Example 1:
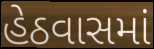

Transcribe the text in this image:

હેઠવાસમાં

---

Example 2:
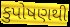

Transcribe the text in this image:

કુપોષણથી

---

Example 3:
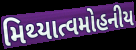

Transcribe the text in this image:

મિથ્યાત્વમોહનીય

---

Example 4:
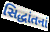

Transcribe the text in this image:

સિદ્ધાંતનાં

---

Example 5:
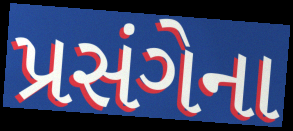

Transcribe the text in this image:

પ્રસંગેના